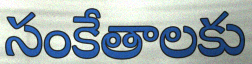
సంకేతాలకు